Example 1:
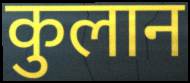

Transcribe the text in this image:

कुलान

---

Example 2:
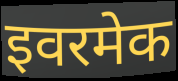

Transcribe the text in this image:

इवरमेक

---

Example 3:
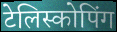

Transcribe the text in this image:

टेलिस्कोपिंग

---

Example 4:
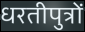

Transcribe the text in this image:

धरतीपुत्रों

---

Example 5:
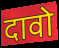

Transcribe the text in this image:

दावो